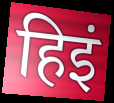
हिइं